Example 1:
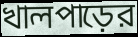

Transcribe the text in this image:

খালপাড়ের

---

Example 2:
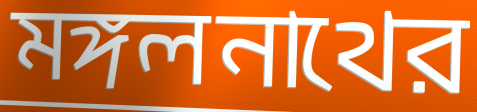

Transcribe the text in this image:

মঙ্গলনাথের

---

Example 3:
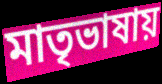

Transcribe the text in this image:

মাতৃভাষায়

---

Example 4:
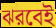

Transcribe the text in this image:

ঝরবেই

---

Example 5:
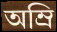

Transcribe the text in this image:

অম্রি